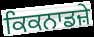
ਕਿਕਨਾਡਜ਼ੇ